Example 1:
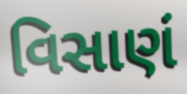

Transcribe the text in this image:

વિસાણં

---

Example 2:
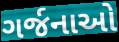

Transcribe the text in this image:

ગર્જનાઓ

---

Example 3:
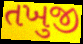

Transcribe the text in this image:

તખુજી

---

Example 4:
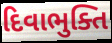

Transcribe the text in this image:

દિવાભુક્તિ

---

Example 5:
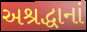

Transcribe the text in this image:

અશ્રદ્ધાનાં